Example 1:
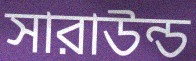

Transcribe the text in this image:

সারাউন্ড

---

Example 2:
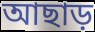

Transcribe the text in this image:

আছাড়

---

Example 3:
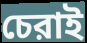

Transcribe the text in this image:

চেরাই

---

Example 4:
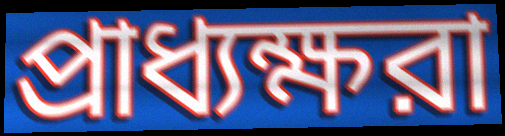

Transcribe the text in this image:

প্রাধ্যক্ষরা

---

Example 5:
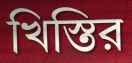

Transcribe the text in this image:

খিস্তির